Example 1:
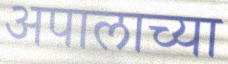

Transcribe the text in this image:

अपालाच्या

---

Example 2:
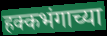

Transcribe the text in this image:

हक्कभंगाच्या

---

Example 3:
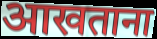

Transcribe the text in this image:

आखताना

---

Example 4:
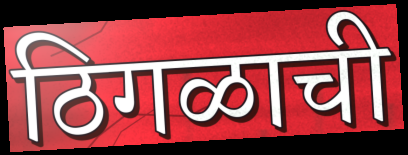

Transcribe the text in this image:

ठिगळाची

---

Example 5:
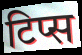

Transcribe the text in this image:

टिप्स